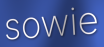
sowie